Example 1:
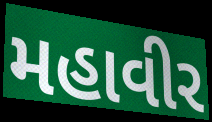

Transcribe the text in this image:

મહાવીર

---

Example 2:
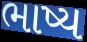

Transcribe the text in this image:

ભાષ્ય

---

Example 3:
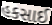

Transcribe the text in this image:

હકસાઈ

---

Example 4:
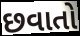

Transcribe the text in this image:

છવાતો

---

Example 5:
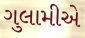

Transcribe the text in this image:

ગુલામીએ